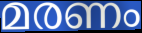
മരണം